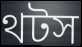
থটস